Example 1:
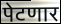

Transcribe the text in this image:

पेटणार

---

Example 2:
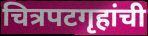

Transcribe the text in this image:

चित्रपटगृहांची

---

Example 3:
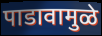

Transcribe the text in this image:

पाडावामुळे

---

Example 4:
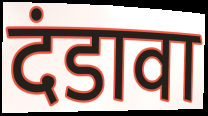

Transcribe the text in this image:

दंडावा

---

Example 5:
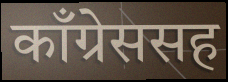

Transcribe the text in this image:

काँग्रेससह